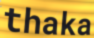
thaka